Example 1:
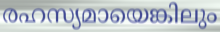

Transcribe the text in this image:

രഹസ്യമായെങ്കിലും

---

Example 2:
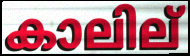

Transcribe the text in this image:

കാലില്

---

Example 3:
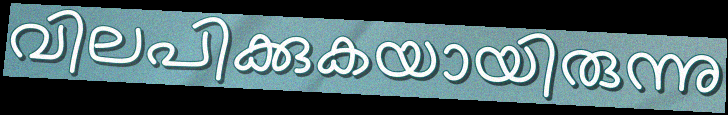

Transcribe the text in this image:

വിലപിക്കുകയായിരുന്നു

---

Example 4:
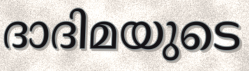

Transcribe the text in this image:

ദാദിമയുടെ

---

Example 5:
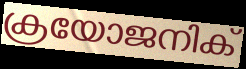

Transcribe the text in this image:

ക്രയോജനിക്